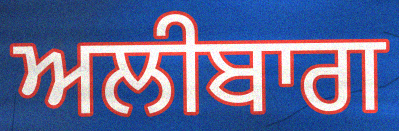
ਅਲੀਬਾਗ